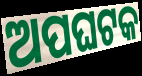
ଅପଘଟକ